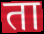
ता